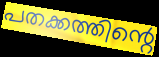
പതക്കത്തിന്റെ